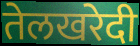
तेलखरेदी